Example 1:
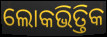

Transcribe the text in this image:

ଲୋକଭିତ୍ତିକ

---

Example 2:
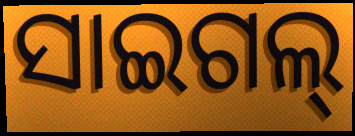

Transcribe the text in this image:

ସାଇଗଲ୍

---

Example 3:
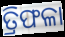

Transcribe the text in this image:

ତ୍ରିଫଳା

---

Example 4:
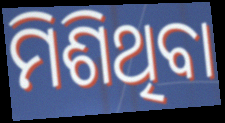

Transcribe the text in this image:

ମିଶିଥିବା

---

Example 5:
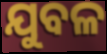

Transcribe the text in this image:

ଯୁବଳ